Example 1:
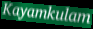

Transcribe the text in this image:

Kayamkulam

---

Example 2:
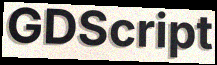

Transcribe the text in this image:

GDScript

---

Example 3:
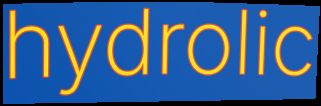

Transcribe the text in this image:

hydrolic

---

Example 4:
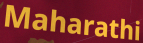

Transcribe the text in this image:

Maharathi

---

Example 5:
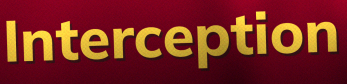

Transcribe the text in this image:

Interception